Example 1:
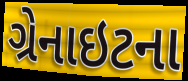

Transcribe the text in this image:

ગ્રેનાઇટના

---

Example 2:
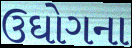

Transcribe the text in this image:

ઉઘોગના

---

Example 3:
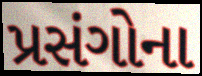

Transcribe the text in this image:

પ્રસંગોના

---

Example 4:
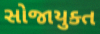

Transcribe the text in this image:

સોજાયુક્ત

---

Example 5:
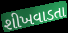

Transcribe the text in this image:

શીખવાડતા